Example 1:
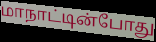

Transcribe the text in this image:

மாநாட்டின்போது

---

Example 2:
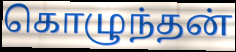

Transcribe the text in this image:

கொழுந்தன்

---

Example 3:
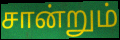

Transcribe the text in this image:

சான்றும்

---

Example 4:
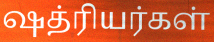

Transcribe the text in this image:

ஷத்ரியர்கள்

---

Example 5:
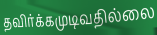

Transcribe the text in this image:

தவிர்க்கமுடிவதில்லை